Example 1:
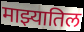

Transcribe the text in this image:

माझ्यातिल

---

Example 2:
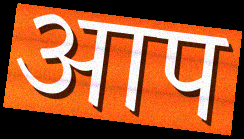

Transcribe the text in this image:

आप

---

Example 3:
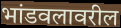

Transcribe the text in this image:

भांडवलावरील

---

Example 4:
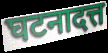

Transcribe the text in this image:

घटनादत्त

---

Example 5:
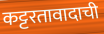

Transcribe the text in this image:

कट्टरतावादाची